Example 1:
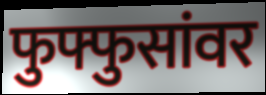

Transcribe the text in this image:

फुफ्फुसांवर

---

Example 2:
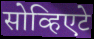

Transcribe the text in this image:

सोव्हिएटे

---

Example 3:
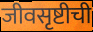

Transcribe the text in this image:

जीवसृष्टीची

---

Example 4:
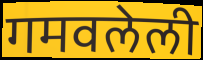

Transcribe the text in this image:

गमवलेली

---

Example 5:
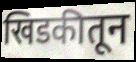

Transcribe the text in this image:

खिडकीतून